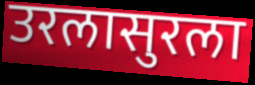
उरलासुरला